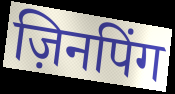
ज़िनपिंग